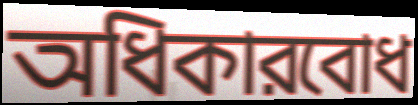
অধিকারবোধ